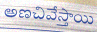
అణచివేస్తాయి